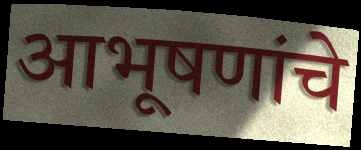
आभूषणांचे